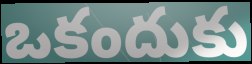
ఒకందుకు